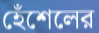
হেঁশেলের